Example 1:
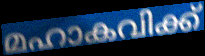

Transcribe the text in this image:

മഹാകവിക്ക്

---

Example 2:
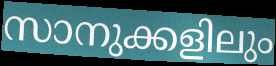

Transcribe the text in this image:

സാനുക്കളിലും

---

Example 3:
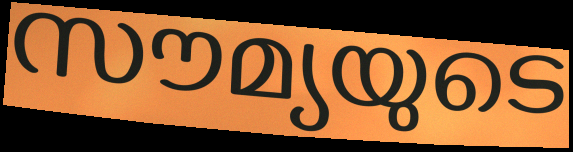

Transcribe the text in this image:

സൗമ്യയുടെ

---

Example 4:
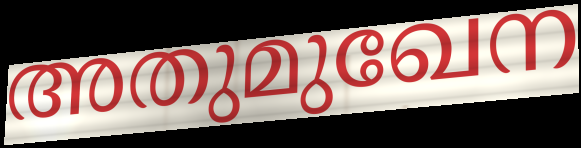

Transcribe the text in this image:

അതുമുഖേന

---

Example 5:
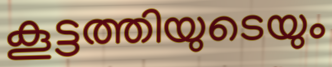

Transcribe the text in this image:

കൂട്ടത്തിയുടെയും